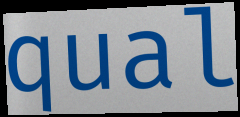
qual